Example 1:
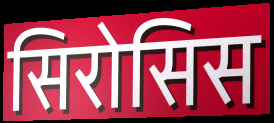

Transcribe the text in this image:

सिरोसिस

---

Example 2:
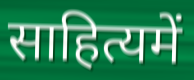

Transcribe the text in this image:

साहित्यमें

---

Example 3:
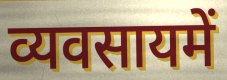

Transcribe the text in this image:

व्यवसायमें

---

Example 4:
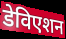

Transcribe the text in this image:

डेविएशन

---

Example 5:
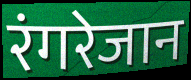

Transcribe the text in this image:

रंगरेजान